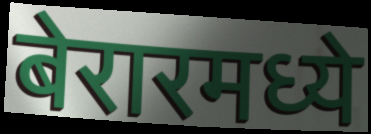
बेरारमध्ये